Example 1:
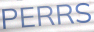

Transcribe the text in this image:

PERRS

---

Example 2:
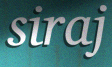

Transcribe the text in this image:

siraj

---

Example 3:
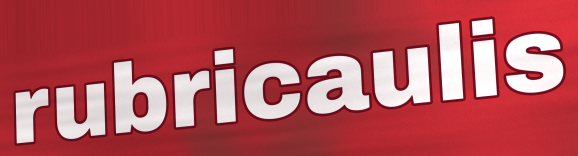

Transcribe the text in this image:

rubricaulis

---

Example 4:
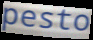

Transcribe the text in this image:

pesto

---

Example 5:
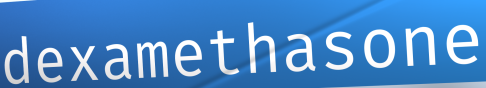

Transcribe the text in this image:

dexamethasone